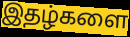
இதழ்களை